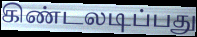
கிண்டலடிப்பது